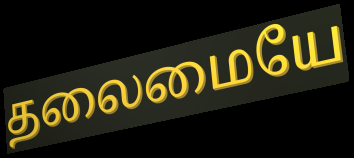
தலைமையே